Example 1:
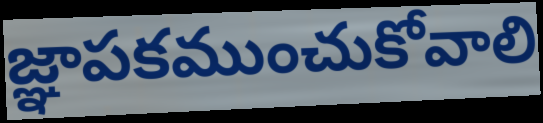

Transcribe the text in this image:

జ్ఞాపకముంచుకోవాలి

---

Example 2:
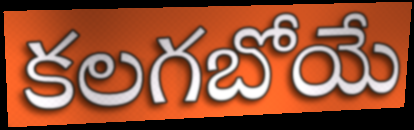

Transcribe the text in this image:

కలగబోయే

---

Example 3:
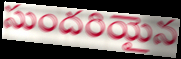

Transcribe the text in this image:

సుందరియైన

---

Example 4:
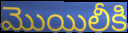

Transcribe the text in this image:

మొయిలీకి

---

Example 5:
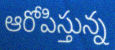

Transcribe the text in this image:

ఆరోపిస్తున్న